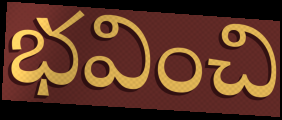
భవించి